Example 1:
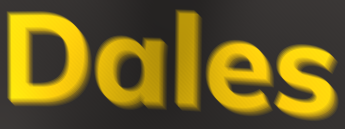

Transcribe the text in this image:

Dales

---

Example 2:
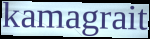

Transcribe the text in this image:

kamagrait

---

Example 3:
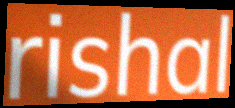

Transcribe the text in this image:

rishal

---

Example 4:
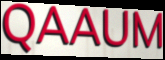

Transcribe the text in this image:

QAAUM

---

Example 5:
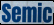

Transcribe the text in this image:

Semic